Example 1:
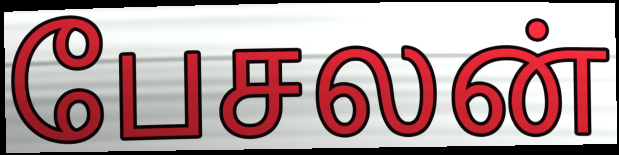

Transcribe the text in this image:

பேசலன்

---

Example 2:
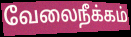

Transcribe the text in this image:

வேலைநீக்கம்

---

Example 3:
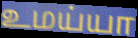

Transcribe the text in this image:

உமய்யா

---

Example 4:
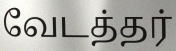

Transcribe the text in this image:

வேடத்தர்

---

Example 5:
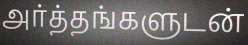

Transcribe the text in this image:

அர்த்தங்களுடன்